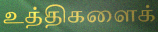
உத்திகளைக்